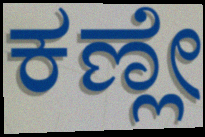
ಕಣ್ಲೇ